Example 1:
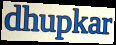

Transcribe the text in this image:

dhupkar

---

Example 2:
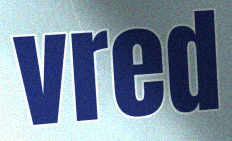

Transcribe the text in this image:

vred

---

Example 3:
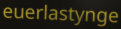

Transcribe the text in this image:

euerlastynge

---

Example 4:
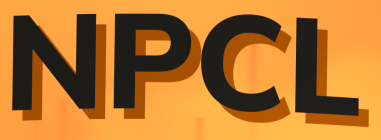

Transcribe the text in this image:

NPCL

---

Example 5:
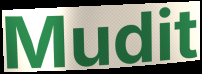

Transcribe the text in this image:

Mudit